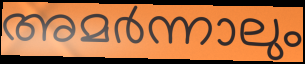
അമർന്നാലും